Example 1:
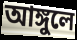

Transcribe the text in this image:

আঙ্গুলে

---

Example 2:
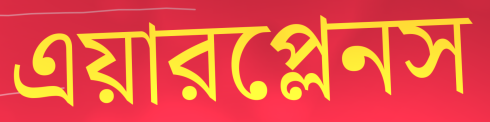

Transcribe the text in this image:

এয়ারপ্লেনস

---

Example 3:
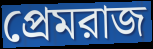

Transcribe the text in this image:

প্রেমরাজ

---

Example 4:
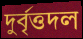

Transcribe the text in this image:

দুর্বৃত্তদল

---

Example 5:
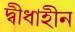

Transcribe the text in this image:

দ্বীধাহীন